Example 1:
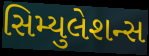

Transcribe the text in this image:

સિમ્યુલેશન્સ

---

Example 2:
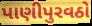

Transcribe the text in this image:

પાણીપુરવઠો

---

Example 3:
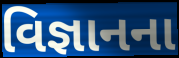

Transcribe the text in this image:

વિજ્ઞાનના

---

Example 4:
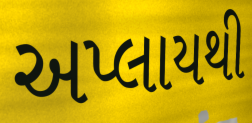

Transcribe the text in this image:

અપ્લાયથી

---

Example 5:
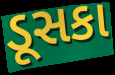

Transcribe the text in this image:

ડૂસકા